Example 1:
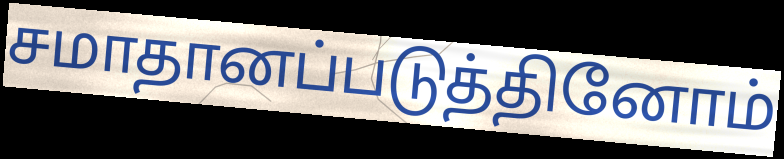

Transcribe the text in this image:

சமாதானப்படுத்தினோம்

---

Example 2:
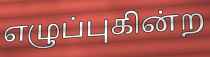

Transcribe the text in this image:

எழுப்புகின்ற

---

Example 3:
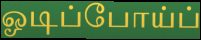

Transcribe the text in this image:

ஓடிப்போய்ப்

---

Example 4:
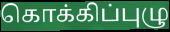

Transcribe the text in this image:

கொக்கிப்புழு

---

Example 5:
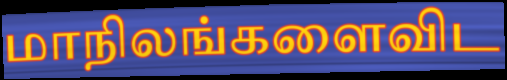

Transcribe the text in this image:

மாநிலங்களைவிட